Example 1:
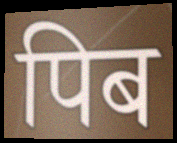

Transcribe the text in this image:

पिब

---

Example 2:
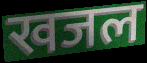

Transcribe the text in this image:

खजल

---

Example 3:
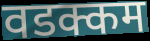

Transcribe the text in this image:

वडक्कम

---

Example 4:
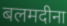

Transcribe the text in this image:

बलमदीना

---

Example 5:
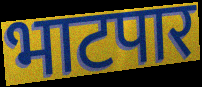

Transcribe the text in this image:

भाटपार